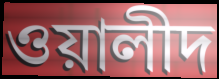
ওয়ালীদ